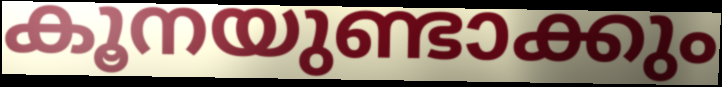
കൂനയുണ്ടാക്കും